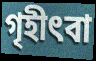
গৃহীৎবা